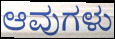
ಆವುಗಳು